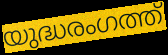
യുദ്ധരംഗത്ത്